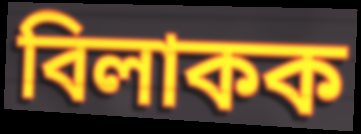
বিলাকক